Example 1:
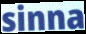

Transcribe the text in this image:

sinna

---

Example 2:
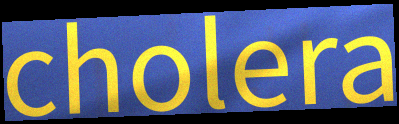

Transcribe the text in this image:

cholera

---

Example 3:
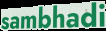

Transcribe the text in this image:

sambhadi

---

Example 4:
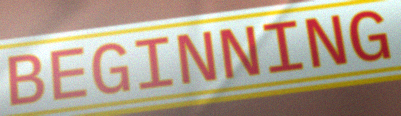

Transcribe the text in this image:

BEGINNING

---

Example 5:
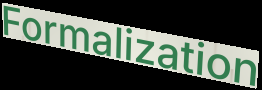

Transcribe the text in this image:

Formalization